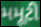
મમૂટી